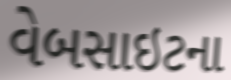
વેબસાઇટના